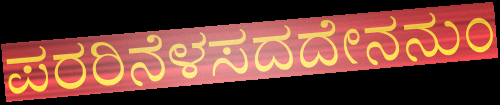
ಪರರಿನೆಳಸದದೇನನುಂ